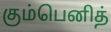
கும்பெனித்